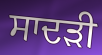
ਸਾਦੜੀ